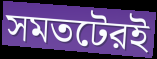
সমতটেরই